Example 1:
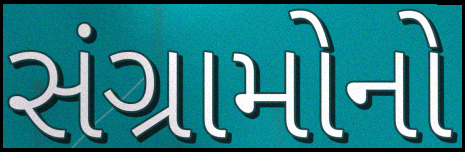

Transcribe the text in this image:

સંગ્રામોનો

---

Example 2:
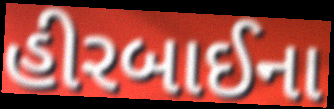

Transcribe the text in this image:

હીરબાઈના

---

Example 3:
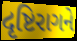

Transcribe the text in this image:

દૃષ્ટિરાગને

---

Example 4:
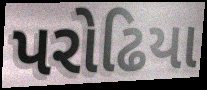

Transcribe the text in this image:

પરોઢિયા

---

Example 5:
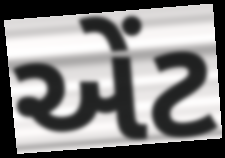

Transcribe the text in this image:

એંટ